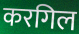
करगिल